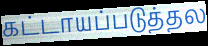
கட்டாயப்படுத்தல